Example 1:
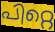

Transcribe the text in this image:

പിറ്റെ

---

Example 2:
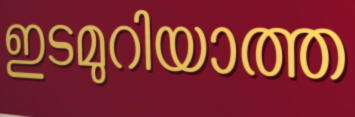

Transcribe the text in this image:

ഇടമുറിയാത്ത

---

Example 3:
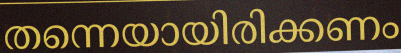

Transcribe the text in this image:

തന്നെയായിരിക്കണം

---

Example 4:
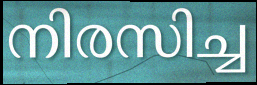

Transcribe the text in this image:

നിരസിച്ച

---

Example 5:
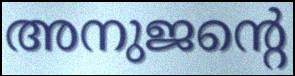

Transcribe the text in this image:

അനുജന്റെ